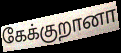
கேக்குறானா